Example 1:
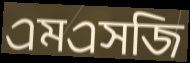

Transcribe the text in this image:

এমএসজি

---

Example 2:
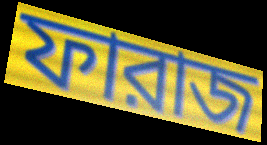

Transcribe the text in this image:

ফারাজ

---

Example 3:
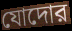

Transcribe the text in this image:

যোদোর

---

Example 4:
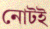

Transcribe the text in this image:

নোটই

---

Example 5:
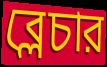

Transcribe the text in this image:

ব্লেচার